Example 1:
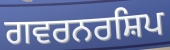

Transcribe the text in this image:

ਗਵਰਨਰਸ਼ਿਪ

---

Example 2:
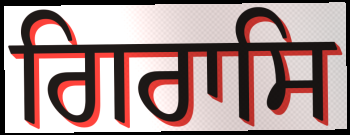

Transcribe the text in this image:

ਗਿਰਾਸਿ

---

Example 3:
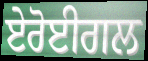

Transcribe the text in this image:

ਏਰੋਈਗਲ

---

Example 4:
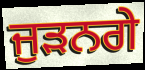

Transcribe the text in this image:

ਜੁਡ਼ਨਗੇ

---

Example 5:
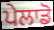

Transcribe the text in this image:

ਪੇਲਾਡੋ